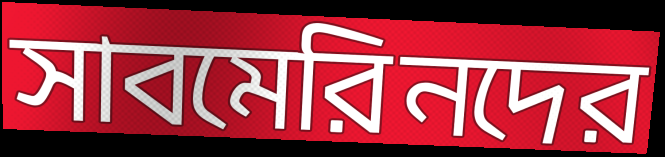
সাবমেরিনদের